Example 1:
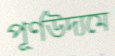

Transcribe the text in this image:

পূর্ণউদ্যমে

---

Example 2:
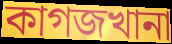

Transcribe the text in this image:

কাগজখানা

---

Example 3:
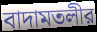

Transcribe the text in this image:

বাদামতলীর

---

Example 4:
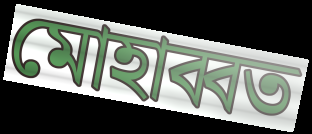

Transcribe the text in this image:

মোহাব্বত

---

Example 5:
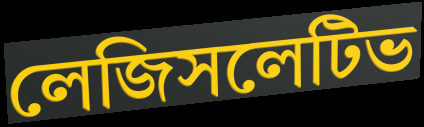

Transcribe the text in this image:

লেজিসলেটিভ